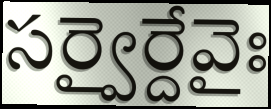
సర్వైర్దేవైః